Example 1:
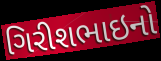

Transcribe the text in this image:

ગિરીશભાઇનો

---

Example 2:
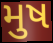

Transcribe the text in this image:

મુષ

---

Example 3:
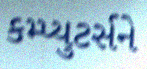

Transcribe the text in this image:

કમ્પ્યુટર્સને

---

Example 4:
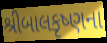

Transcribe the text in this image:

શ્રીબાલકૃષ્ણના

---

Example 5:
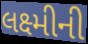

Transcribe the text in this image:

લક્ષ્મીની